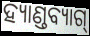
ହ୍ୟାଣ୍ଡବ୍ୟାଗ୍